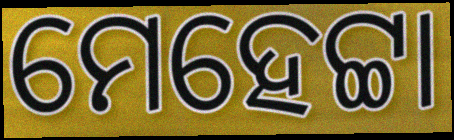
ମେହେଟ୍ଟା